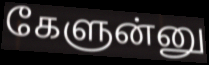
கேளுன்னு